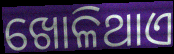
ଖୋଳିଥାଏ